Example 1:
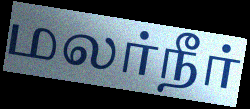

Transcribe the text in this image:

மலர்நீர்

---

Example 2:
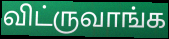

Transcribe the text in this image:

விட்ருவாங்க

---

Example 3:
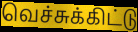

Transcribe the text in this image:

வெச்சுக்கிட்டு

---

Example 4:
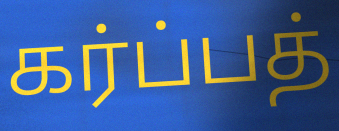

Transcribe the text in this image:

கர்ப்பத்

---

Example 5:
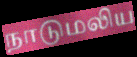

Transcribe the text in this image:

நாடுமலிய